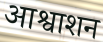
आश्वाशन